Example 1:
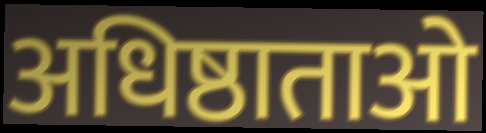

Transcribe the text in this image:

अधिष्ठाताओ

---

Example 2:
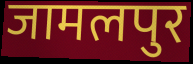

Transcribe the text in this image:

जामलपुर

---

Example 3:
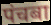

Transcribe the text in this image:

पंचबा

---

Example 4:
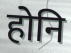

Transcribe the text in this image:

होनि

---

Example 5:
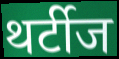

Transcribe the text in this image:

थर्टीज